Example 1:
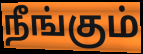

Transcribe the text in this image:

நீங்கும்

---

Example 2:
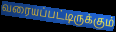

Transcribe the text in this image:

வரையப்பட்டிருக்கும்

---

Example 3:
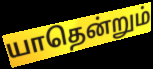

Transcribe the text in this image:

யாதென்றும்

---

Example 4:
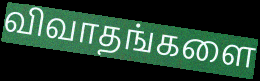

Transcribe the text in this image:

விவாதங்களை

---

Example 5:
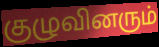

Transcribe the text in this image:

குழுவினரும்